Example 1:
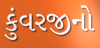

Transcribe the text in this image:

કુંવરજીનો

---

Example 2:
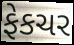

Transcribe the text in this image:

ફેકચર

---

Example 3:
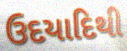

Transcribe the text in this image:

ઉદયાદિથી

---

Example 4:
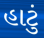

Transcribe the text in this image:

હાટું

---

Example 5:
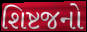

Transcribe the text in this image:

શિષ્ટજનો